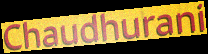
Chaudhurani